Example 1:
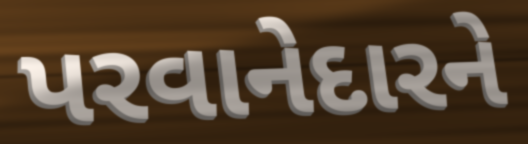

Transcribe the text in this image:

પરવાનેદારને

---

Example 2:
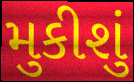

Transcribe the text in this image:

મુકીશું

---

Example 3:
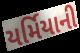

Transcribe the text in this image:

યર્મિયાની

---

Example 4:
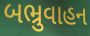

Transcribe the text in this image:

બભ્રુવાહન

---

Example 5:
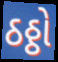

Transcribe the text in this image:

ઠઠ્ઠો